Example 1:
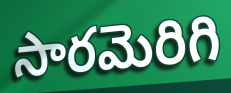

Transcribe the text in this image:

సారమెరిగి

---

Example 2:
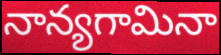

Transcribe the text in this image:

నాన్యగామినా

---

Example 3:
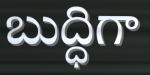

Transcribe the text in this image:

బుద్ధిగా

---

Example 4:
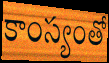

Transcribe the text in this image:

కాంస్యంతో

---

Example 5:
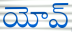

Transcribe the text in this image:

యోవ్